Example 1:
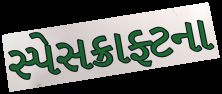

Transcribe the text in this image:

સ્પેસક્રાફ્ટના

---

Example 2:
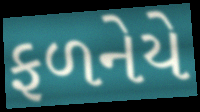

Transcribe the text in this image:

ફળનેયે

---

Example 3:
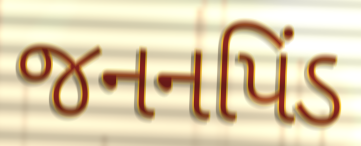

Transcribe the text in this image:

જનનપિંડ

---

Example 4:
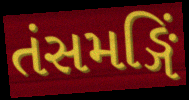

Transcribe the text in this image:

તંસમઙ્ગિં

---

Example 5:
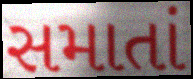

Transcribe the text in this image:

સમાતાં